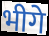
भीगे